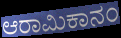
ಆರಾಮಿಕಾನಂ